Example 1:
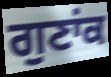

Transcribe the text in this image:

ਗੁਣਾਂਕ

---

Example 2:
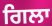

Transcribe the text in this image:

ਗਿਲਾ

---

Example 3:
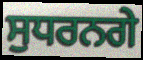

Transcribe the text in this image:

ਸੁਧਰਨਗੇ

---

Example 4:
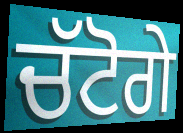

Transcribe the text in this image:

ਚੱਟੋਗੇ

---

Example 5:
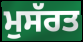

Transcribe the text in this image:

ਮੁਸੱਰਤ